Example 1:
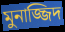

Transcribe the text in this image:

মুনাজ্জিদ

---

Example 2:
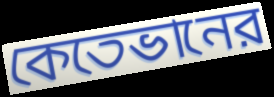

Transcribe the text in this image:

কেতেভানের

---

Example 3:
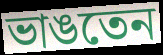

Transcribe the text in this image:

ভাঙতেন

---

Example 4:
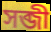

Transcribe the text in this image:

সব্জী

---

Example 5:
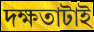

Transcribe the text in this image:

দক্ষতাটাই